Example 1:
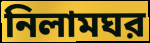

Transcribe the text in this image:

নিলামঘর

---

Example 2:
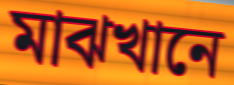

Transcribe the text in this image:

মাঝখানে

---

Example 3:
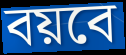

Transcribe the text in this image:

বয়বে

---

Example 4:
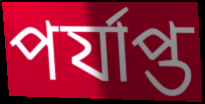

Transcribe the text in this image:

পর্যাপ্ত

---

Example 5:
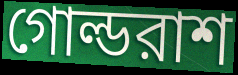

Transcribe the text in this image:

গোল্ডরাশ